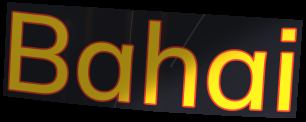
Bahai